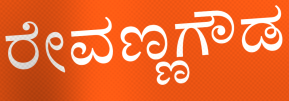
ರೇವಣ್ಣಗೌಡ